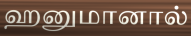
ஹனுமானால்